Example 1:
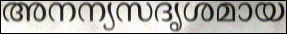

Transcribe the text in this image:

അനന്യസദൃശമായ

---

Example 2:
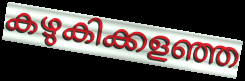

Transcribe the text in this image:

കഴുകിക്കളഞ്ഞ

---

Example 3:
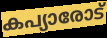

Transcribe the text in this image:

കപ്യാരോട്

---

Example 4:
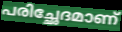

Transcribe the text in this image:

പരിച്ഛേദമാണ്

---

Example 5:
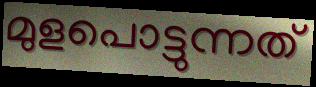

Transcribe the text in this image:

മുളപൊട്ടുന്നത്